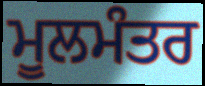
ਮੂਲਮੰਤਰ